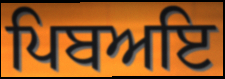
ਪਿਬਅਇ